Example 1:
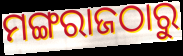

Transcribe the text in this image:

ମଙ୍ଗରାଜଠାରୁ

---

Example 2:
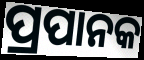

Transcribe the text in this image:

ପ୍ରପାନକ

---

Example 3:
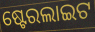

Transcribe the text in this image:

ଷ୍ଟେରଲାଇଟ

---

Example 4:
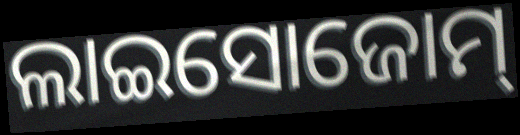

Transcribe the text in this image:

ଲାଇସୋଜୋମ୍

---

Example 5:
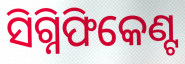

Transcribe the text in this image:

ସିଗ୍ନିଫିକେଣ୍ଟ